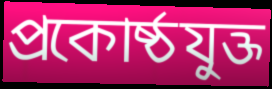
প্রকোষ্ঠযুক্ত